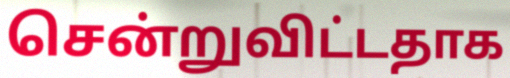
சென்றுவிட்டதாக